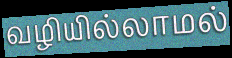
வழியில்லாமல்